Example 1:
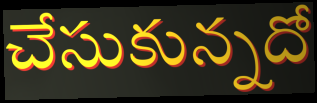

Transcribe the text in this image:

చేసుకున్నదో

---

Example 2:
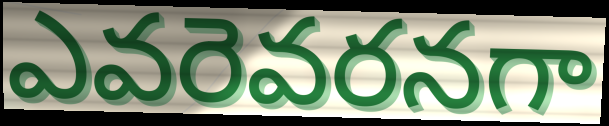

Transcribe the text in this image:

ఎవరెవరనగా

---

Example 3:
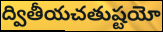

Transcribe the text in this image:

ద్వితీయచతుష్టయో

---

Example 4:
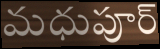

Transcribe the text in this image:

మధుపూర్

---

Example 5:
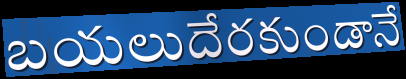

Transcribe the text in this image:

బయలుదేరకుండానే